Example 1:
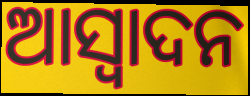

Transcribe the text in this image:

ଆସ୍ୱାଦନ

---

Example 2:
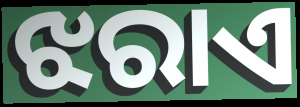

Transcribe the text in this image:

ଝରାଏ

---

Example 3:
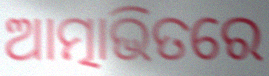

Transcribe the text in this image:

ଆତ୍ମାଭିତରେ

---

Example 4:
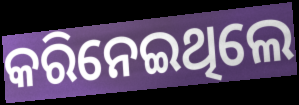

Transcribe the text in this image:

କରିନେଇଥିଲେ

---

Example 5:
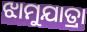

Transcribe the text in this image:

ଝାମୁଯାତ୍ରା